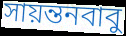
সায়ন্তনবাবু